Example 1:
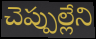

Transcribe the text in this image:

చెప్పుల్లేని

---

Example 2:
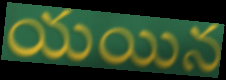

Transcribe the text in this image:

యయిన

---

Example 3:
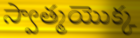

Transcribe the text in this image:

స్వాత్మయొక్క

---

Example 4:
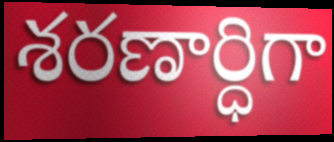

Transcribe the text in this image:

శరణార్ధిగా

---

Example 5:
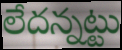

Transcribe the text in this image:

లేదన్నట్టు